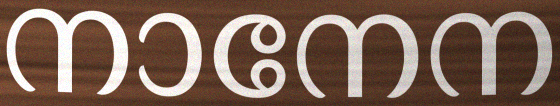
നാനേന